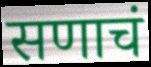
सणाचं